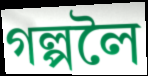
গল্পলৈ